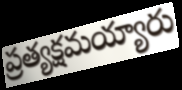
ప్రత్యక్షమయ్యారు